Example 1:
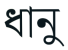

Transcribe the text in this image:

ধানু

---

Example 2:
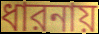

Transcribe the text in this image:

ধারনায়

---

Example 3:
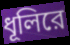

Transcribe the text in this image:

ধূলিরে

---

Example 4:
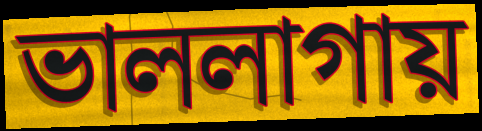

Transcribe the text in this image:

ভাললাগায়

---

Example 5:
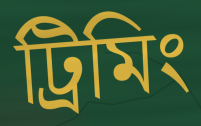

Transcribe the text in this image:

ট্রিমিং